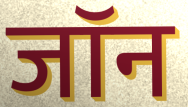
जॉन